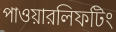
পাওয়ারলিফটিং